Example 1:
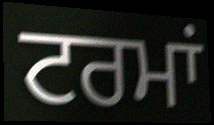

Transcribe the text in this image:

ਟਰਮਾਂ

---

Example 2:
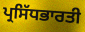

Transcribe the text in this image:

ਪ੍ਰਸਿੱਧਭਾਰਤੀ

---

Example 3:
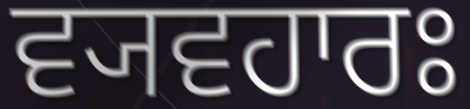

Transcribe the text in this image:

ਵ੍ਯਵਹਾਰਃ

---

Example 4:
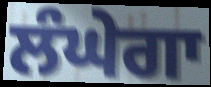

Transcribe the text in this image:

ਲੰਘੇਗਾ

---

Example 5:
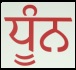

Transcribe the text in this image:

ਧੂੰਨ